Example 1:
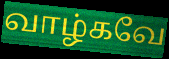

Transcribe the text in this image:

வாழ்கவே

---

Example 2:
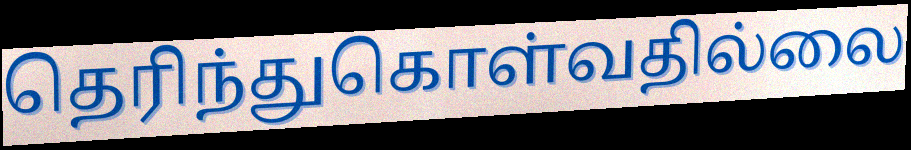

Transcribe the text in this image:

தெரிந்துகொள்வதில்லை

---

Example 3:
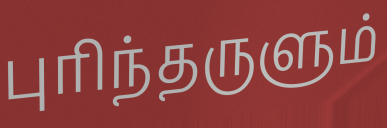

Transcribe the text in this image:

புரிந்தருளும்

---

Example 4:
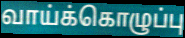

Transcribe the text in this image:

வாய்க்கொழுப்பு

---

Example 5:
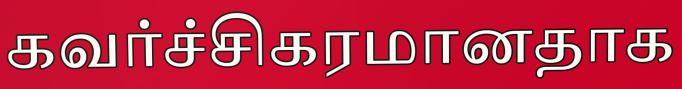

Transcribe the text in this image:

கவர்ச்சிகரமானதாக